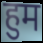
हुम